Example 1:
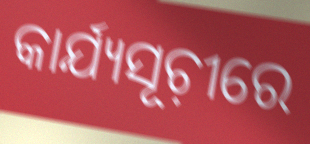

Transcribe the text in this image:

କାର୍ଯ୍ୟସୂଚ଼ୀରେ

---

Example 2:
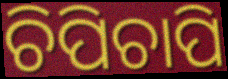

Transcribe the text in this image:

ଚିପିଚାପି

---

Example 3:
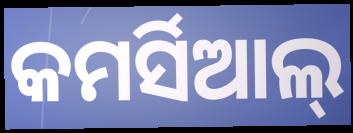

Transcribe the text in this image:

କମର୍ସିଆଲ୍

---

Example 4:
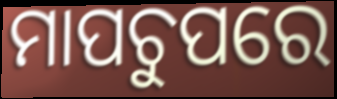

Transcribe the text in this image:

ମାପଚୁପରେ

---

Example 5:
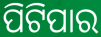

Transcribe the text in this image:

ପିଟିପାର